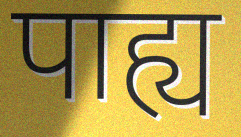
पाह्य